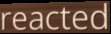
reacted